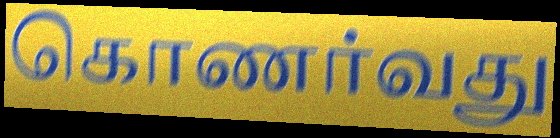
கொணர்வது